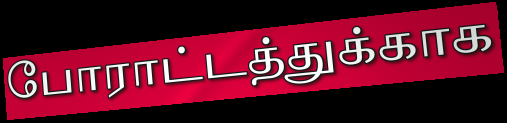
போராட்டத்துக்காக